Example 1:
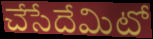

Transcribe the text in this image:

చేసేదేమిటో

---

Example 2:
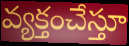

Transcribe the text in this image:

వ్యక్తంచేస్తూ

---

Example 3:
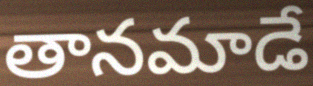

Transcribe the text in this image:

తానమాడే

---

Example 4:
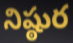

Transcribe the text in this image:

నిష్ఠుర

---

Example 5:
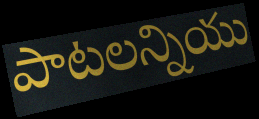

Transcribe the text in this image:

పాటలన్నియు